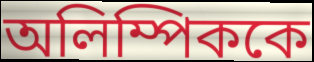
অলিম্পিককে